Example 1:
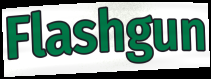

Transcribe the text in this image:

Flashgun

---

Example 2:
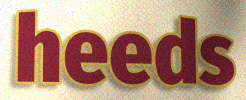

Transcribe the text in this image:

heeds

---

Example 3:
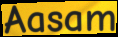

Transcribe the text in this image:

Aasam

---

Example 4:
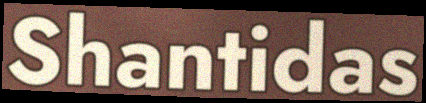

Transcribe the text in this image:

Shantidas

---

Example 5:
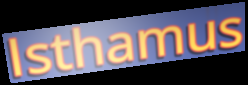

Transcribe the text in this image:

Isthamus